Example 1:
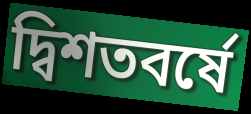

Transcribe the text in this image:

দ্বিশতবর্ষে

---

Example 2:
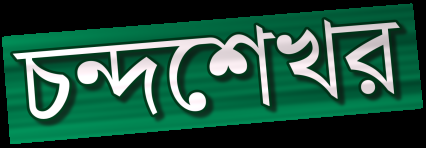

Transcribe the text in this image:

চন্দশেখর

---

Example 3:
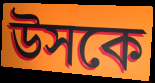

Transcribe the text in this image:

উসকে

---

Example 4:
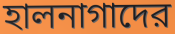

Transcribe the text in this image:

হালনাগাদের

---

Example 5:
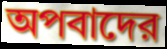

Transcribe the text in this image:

অপবাদের